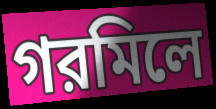
গরমিলে